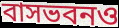
বাসভবনও